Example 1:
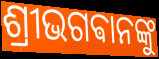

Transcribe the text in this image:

ଶ୍ରୀଭଗଵାନଙ୍କୁ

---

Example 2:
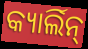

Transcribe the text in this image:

କ୍ୟାର୍ଲିନ୍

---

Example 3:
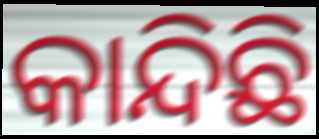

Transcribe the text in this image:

କାନ୍ଦିଛି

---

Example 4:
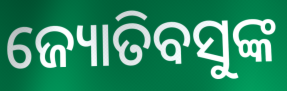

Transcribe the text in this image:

ଜ୍ୟୋତିବସୁଙ୍କ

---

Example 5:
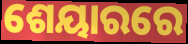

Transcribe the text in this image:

ଶେୟାରରେ